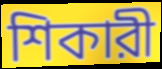
শিকারী